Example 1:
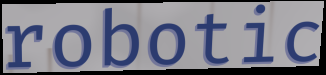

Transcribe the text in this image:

robotic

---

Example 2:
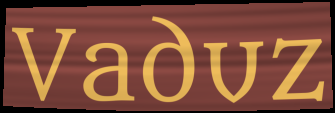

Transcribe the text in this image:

Vaduz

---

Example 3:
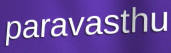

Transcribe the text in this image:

paravasthu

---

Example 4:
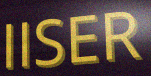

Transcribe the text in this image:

IISER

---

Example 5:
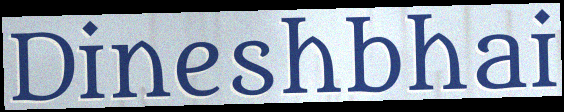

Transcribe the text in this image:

Dineshbhai